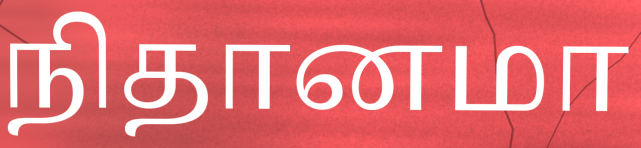
நிதானமா